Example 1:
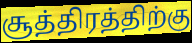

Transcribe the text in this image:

சூத்திரத்திற்கு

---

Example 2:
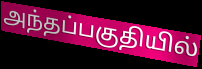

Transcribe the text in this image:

அந்தப்பகுதியில்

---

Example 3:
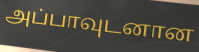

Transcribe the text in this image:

அப்பாவுடனான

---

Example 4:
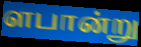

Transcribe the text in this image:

ளபான்று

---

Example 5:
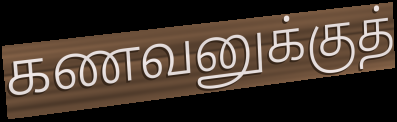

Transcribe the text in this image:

கணவனுக்குத்